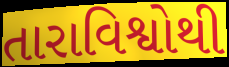
તારાવિશ્વોથી